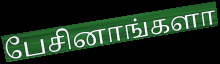
பேசினாங்களா